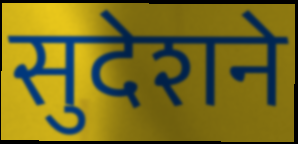
सुदेशने